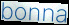
bonna